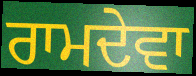
ਰਾਮਦੇਵਾ